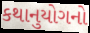
કથાનુયોગનો